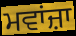
ਮਵਾਂਜ਼ਾ